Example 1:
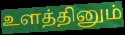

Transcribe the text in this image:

உளத்தினும்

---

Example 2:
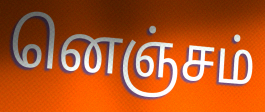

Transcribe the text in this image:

னெஞ்சம்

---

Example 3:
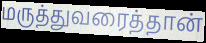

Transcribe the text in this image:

மருத்துவரைத்தான்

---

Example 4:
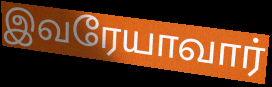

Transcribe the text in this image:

இவரேயாவார்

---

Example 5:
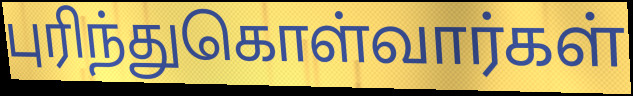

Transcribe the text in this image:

புரிந்துகொள்வார்கள்